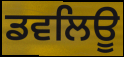
ਡਵਲਿਊ